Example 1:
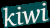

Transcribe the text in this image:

kiwi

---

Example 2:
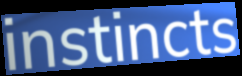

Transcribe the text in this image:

instincts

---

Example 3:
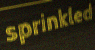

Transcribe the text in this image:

sprinkled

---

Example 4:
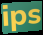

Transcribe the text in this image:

ips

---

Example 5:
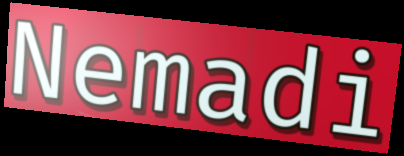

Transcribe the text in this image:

Nemadi